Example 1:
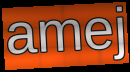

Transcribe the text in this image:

amej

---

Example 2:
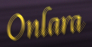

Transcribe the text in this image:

Onlara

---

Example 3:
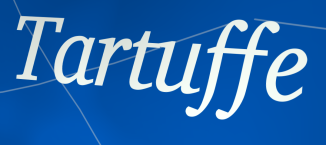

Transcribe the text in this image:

Tartuffe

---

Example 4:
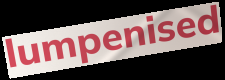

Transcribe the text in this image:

lumpenised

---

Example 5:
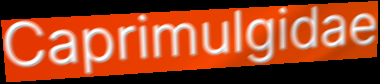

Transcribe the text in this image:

Caprimulgidae